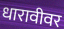
धारावीवर